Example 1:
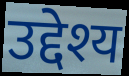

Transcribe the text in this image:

उद्देश्‍य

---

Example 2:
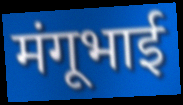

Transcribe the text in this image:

मंगूभाई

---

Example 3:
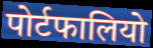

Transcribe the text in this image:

पोर्टफालियो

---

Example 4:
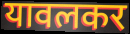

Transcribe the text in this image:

यावलकर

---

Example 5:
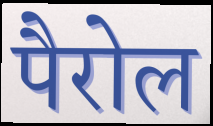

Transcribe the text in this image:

पैरोल